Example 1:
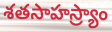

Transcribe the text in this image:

శతసాహస్ర్యాం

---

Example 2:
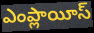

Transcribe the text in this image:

ఎంప్లాయీస్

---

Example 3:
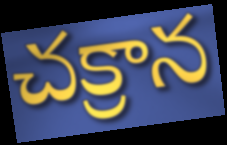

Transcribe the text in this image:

చక్రాన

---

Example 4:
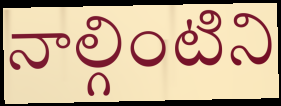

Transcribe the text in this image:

నాల్గింటిని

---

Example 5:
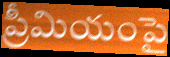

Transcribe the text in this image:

ప్రీమియంపై